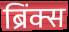
ब्रिंक्स